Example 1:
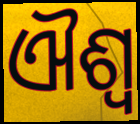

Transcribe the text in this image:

ଐଶ୍ୱ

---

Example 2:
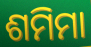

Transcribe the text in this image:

ଶମିମା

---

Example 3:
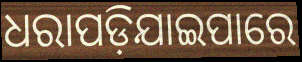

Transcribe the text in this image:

ଧରାପଡ଼ିଯାଇପାରେ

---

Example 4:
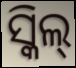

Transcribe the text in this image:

ସ୍କିଲ୍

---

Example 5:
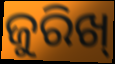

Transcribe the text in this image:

ଜୁରିଖ୍